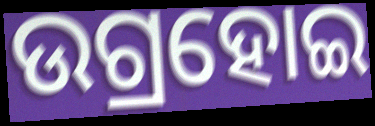
ଉଗ୍ରହୋଇ